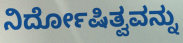
ನಿರ್ದೋಷಿತ್ವವನ್ನು